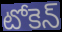
టోకెన్